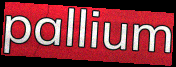
pallium